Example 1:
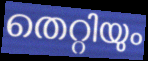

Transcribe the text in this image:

തെറ്റിയും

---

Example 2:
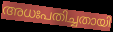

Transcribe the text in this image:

അധഃപതിച്ചതായി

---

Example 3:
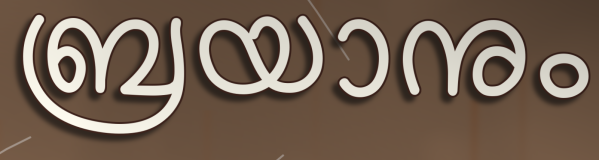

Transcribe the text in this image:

ബ്രയാനും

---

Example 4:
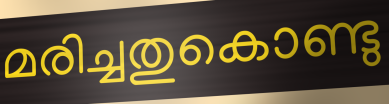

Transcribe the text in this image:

മരിച്ചതുകൊണ്ടു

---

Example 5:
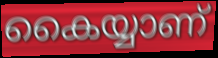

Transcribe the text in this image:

കൈയ്യാണ്